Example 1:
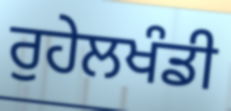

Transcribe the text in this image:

ਰੁਹੇਲਖੰਡੀ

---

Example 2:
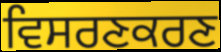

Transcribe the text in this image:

ਵਿਸਰਣਕਰਣ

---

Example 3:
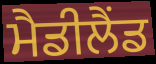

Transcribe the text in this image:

ਮੈਡੀਲੈਂਡ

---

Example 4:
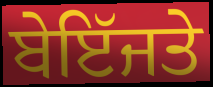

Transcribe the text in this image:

ਬੇਇੱਜਤੇ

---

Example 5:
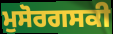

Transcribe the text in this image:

ਮੁਸੋਰਗਸਕੀ